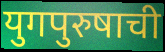
युगपुरुषाची